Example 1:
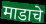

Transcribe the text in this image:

माडाचे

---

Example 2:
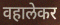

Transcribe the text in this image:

वहालेकर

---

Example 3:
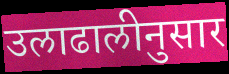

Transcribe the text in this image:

उलाढालीनुसार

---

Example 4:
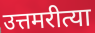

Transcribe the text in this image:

उत्तमरीत्या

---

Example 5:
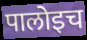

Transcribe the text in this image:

पालोइच